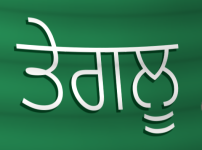
ਤੇਗਲੂ